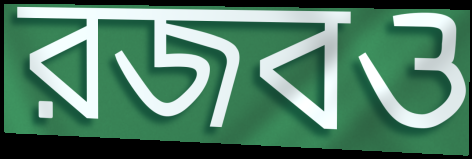
রজবও